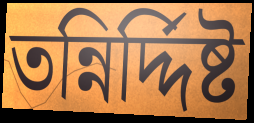
তন্নির্দ্দিষ্ট